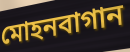
মোহনবাগান